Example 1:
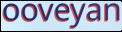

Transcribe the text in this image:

ooveyan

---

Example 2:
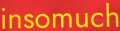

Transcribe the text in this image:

insomuch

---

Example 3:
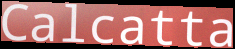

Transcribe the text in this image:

Calcatta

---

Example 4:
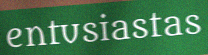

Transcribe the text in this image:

entusiastas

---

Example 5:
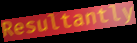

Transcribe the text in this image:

Resultantly